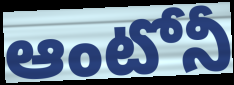
ఆంటోనీ